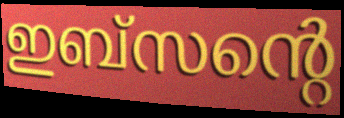
ഇബ്സന്റെ